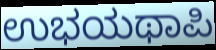
ಉಭಯಥಾಪಿ